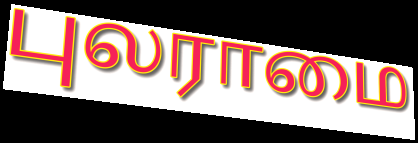
புலராமை